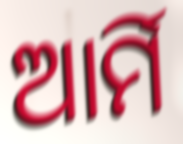
ଆର୍ମି